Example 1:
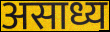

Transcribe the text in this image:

असाध्य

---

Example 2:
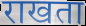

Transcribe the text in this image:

राखता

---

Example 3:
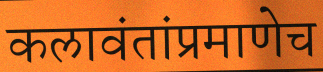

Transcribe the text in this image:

कलावंतांप्रमाणेच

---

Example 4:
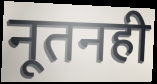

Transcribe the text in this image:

नूतनही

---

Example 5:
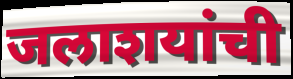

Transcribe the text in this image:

जलाशयांची